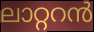
ലാറ്ററൻ